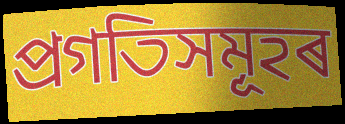
প্ৰগতিসমূহৰ